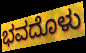
ಭವದೊಳು